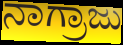
ನಾಗ್ರಾಜು